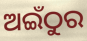
ଅଇଁଠୁର